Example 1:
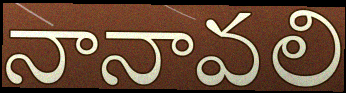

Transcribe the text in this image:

నానావలి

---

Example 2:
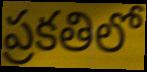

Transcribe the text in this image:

ప్రకతిలో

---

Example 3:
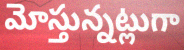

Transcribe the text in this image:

మోస్తున్నట్లుగా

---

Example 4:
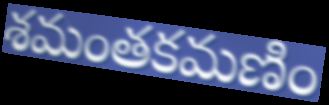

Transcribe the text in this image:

శమంతకమణిం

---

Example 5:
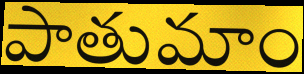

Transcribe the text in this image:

పాతుమాం